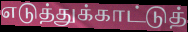
எடுத்துக்காட்டுத்